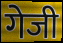
गेजी